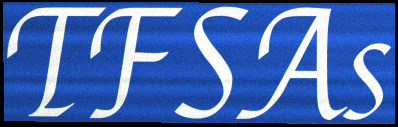
TFSAs